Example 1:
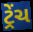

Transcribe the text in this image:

ટ્રેંચ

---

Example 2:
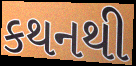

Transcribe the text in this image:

કથનથી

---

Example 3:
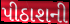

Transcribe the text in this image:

પીઠાશની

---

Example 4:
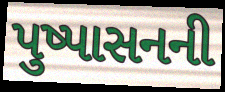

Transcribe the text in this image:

પુષ્પાસનની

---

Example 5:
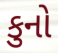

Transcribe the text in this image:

કુનો